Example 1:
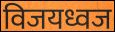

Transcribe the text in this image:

विजयध्वज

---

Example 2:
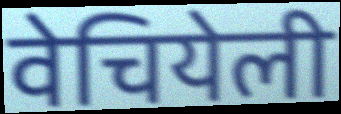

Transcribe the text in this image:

वेचियेली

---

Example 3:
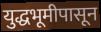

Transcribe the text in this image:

युद्धभूमीपासून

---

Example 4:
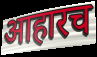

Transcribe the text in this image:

आहारच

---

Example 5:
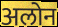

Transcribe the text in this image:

अलोन